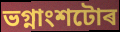
ভগ্নাংশটোৰ